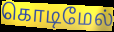
கொடிமேல்